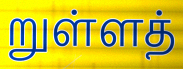
றுள்ளத்